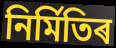
নিৰ্মিতিৰ